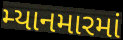
મ્યાનમારમાં